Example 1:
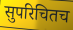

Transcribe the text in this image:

सुपरिचितच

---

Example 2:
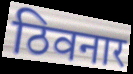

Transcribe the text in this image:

ठिवनार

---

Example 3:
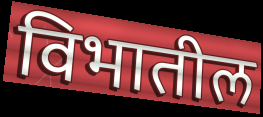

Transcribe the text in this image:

विभातील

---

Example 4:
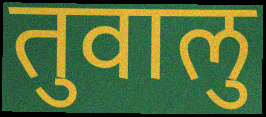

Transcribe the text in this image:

तुवालु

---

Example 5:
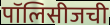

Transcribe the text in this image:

पॉलिसीजची